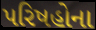
પરિષહોના